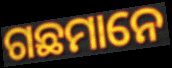
ଗଛମାନେ